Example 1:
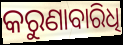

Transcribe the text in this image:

କରୁଣାବାରିଧି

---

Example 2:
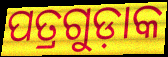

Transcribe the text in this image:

ପତ୍ରଗୁଡ଼ାକ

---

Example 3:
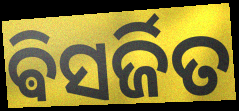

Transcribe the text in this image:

ଵିସର୍ଜିତ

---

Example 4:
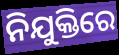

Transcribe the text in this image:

ନିଯୁକ୍ତିରେ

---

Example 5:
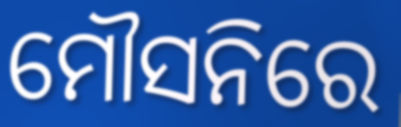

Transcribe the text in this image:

ମୌସନିରେ